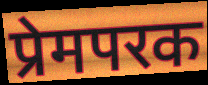
प्रेमपरक